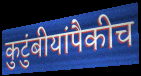
कुटुंबीयांपैकीच